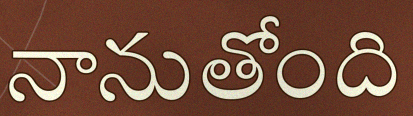
నానుతోంది